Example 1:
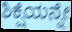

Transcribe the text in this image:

ಶಿಕ್ಷೆಯನ್ನೇ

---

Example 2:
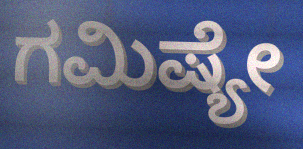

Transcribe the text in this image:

ಗಮಿಷ್ಯೇ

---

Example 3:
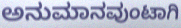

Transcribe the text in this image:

ಅನುಮಾನವುಂಟಾಗಿ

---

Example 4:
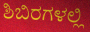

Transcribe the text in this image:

ಶಿಬಿರಗಳಲ್ಲಿ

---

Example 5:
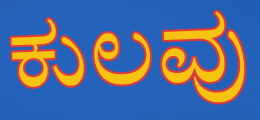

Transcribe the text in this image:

ಕುಲವು